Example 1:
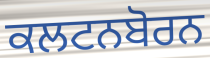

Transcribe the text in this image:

ਕਲਟਨਬੋਰਨ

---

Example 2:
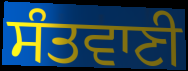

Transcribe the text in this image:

ਸੰਤਵਾਣੀ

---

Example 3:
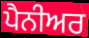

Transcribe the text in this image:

ਪੈਨੀਅਰ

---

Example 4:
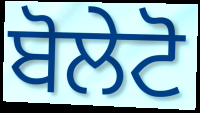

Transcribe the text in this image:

ਬੋਲੇਟੋ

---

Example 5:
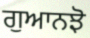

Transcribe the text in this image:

ਗੁਆਨਝੋ